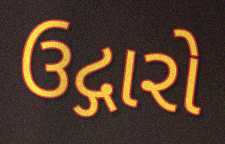
ઉદ્ગારો